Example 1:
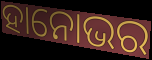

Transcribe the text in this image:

ହାନୋଭର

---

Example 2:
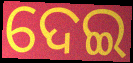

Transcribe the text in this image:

ଦେଇ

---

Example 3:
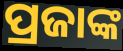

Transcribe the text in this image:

ପ୍ରଜାଙ୍କ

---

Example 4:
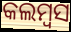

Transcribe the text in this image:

କଲମ୍ବସ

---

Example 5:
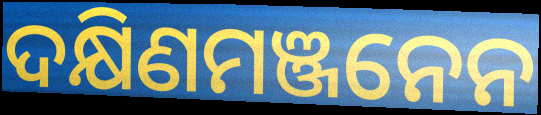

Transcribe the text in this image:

ଦକ୍ଷିଣମଞ୍ଜନେନ